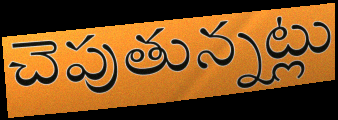
చెపుతున్నట్లు